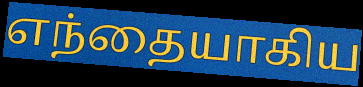
எந்தையாகிய